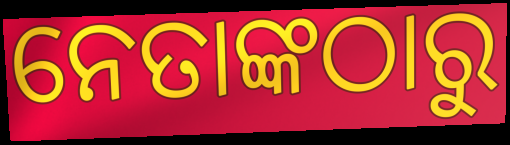
ନେତାଙ୍କଠାରୁ